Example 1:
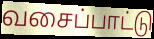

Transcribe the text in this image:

வசைப்பாட்டு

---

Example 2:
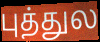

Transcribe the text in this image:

புத்துல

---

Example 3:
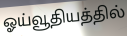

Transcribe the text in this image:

ஓய்வூதியத்தில்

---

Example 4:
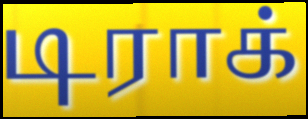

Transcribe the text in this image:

டிராக்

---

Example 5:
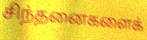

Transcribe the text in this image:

சிந்தனைகளைக்